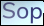
Sop